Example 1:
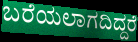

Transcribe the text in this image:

ಬರೆಯಲಾಗದಿದ್ದರೆ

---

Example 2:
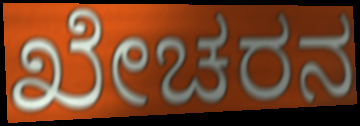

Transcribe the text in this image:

ಖೇಚರನ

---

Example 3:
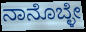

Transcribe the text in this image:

ನಾನೊಬ್ಳೇ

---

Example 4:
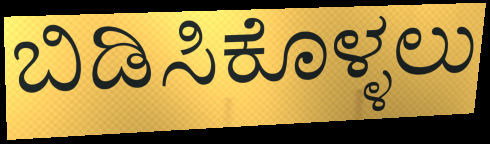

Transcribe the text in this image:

ಬಿಡಿಸಿಕೊಳ್ಳಲು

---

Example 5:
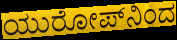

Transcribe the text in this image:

ಯುರೋಪ್‌ನಿಂದ